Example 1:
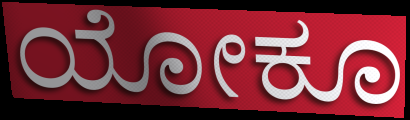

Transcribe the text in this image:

ಯೋಕೂ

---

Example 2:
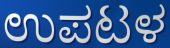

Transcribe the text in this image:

ಉಪಟಳ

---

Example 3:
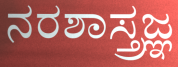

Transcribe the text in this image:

ನರಶಾಸ್ತ್ರಜ್ಞ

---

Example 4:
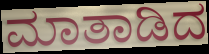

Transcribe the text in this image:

ಮಾತಾಡಿದ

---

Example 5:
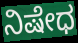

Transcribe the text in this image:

ನಿಷೇಧ